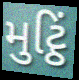
મુટ્ઠિં